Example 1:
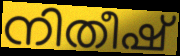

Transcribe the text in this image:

നിതീഷ്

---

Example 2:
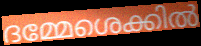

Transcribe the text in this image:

ദമ്മേശെക്കിൽ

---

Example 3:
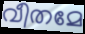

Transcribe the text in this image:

വീതമേ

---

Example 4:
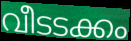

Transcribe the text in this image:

വീടടക്കം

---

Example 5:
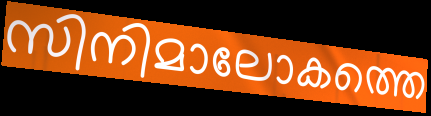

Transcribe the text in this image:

സിനിമാലോകത്തെ